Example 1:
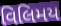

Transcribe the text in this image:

વિલિમય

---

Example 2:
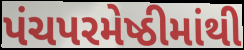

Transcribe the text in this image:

પંચપરમેષ્ઠીમાંથી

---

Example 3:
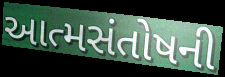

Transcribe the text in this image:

આત્મસંતોષની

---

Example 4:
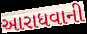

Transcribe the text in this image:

આરાધવાની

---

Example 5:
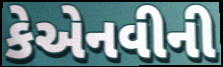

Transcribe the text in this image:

કેએનવીની